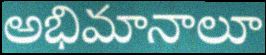
అభిమానాలూ